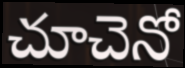
చూచెనో